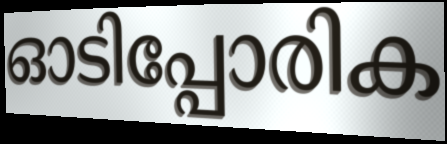
ഓടിപ്പോരിക